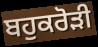
ਬਹੁਕਰੋੜੀ